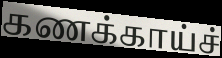
கணக்காய்ச்